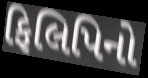
ફિલિપિનો